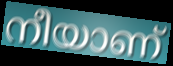
നീയാണ്